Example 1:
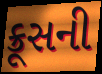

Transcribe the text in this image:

ક્રૂસની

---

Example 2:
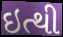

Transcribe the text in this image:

ઇત્થી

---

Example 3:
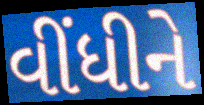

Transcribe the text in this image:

વીંધીને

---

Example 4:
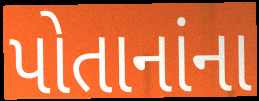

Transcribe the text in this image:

પોતાનાંના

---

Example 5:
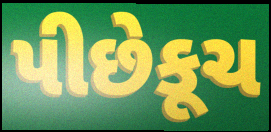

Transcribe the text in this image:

પીછેકૂચ